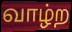
வாழ்ற